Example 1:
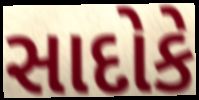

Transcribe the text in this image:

સાદોકે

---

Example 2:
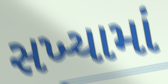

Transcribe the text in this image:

સખ્યામાં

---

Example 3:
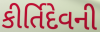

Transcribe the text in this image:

કીર્તિદેવની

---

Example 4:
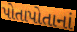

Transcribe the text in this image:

પોતાપોતાનાં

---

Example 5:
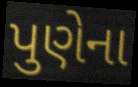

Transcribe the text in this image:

પુણેના